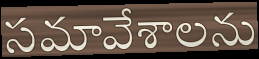
సమావేశాలను